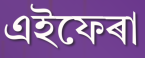
এইফেৰা